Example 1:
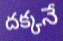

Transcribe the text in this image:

దక్కనే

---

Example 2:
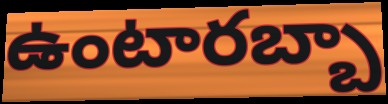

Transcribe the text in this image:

ఉంటారబ్బా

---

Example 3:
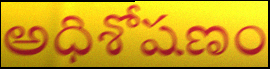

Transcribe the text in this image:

అధిశోషణం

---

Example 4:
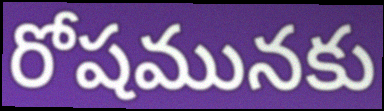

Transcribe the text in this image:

రోషమునకు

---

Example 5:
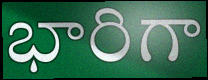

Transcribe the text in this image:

భారిగా